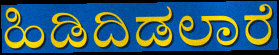
ಹಿಡಿದಿಡಲಾರೆ